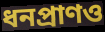
ধনপ্রাণও